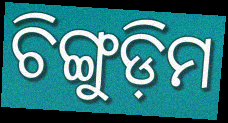
ଚିଙ୍ଗୁଡ଼ିମ